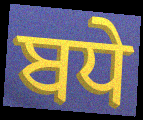
ਬਧੇ